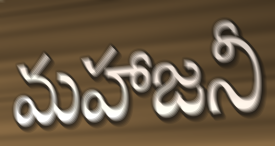
మహాజనీ